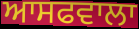
ਆਸਫਵਾਲਾ